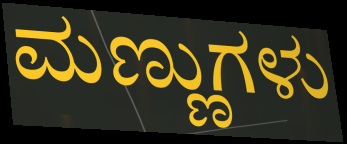
ಮಣ್ಣುಗಳು